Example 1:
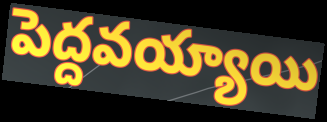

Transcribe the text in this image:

పెద్దవయ్యాయి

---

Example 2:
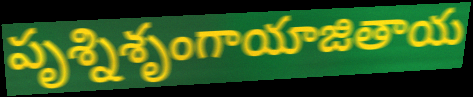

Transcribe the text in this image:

పృశ్నిశృంగాయాజితాయ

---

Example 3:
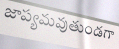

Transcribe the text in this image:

జాప్యమవుతుండగా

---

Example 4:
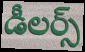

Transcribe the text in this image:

డీలర్స్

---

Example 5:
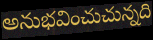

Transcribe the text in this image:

అనుభవించుచున్నది